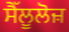
ਸੈੱਲੂਲੋਜ਼